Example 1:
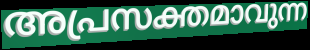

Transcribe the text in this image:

അപ്രസക്തമാവുന്ന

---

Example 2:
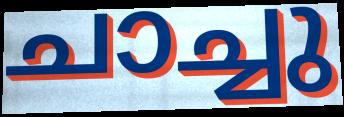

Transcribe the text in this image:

ചാച്ചു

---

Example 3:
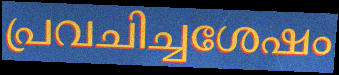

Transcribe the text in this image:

പ്രവചിച്ചശേഷം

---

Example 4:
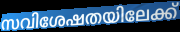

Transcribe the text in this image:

സവിശേഷതയിലേക്ക്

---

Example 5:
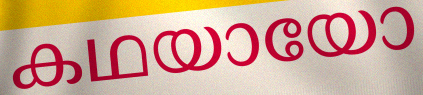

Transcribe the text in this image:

കഥയായോ